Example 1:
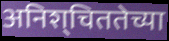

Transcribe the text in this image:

अनिश्चिततेच्या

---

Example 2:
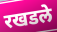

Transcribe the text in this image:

रखडले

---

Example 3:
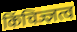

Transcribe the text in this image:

किंचिज्ज्ञत्व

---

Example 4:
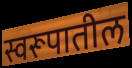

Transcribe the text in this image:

स्वरूपातील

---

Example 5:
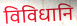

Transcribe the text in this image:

विविधानि